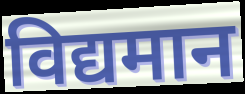
विद्यमान